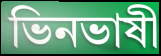
ভিনভাষী